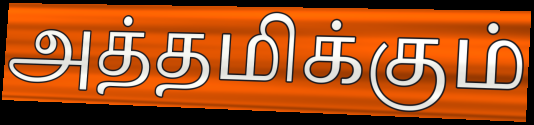
அத்தமிக்கும்